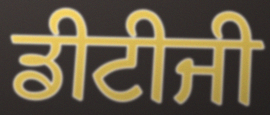
ਡੀਟੀਜੀ